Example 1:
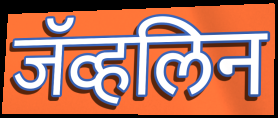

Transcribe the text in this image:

जॅव्हलिन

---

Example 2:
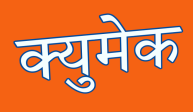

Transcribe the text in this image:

क्युमेक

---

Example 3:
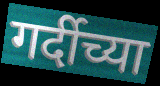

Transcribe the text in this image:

गर्दीच्या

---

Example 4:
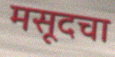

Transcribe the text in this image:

मसूदचा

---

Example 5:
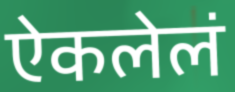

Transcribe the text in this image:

ऐकलेलं